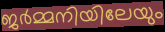
ജർമ്മനിയിലേയും